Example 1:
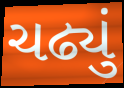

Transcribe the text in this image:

ચઢ્યું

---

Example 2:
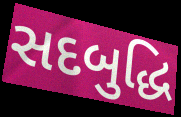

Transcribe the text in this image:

સદબુદ્ધિ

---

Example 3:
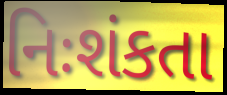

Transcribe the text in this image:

નિઃશંકતા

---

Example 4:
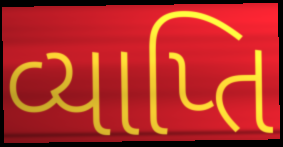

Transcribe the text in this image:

વ્યાપ્તિ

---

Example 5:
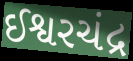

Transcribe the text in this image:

ઈશ્વરચંદ્ર